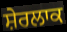
ਸ਼ੇਰਲਾਕ